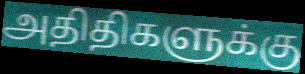
அதிதிகளுக்கு